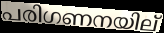
പരിഗണനയില്